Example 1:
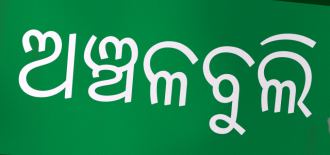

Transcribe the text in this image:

ଅଞ୍ଚଳବୁଲି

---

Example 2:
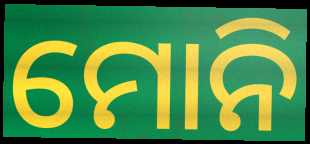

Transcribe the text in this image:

ମୋନି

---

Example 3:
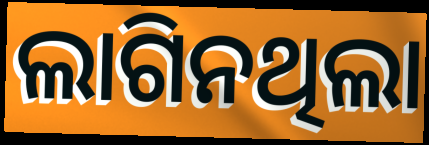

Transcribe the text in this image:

ଲାଗିନଥିଲା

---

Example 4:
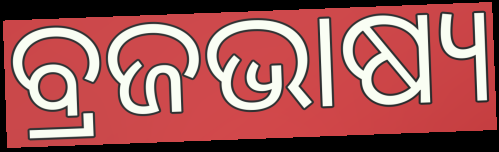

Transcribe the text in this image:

ବ୍ରଜଭାଷ୍ୟ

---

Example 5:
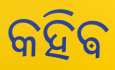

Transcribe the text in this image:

କହିଵ